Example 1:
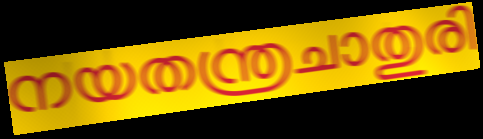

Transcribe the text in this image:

നയതന്ത്രചാതുരി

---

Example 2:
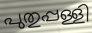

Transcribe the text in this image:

പുതുപ്പള്ളി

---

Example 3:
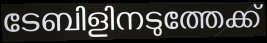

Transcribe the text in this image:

ടേബിളിനടുത്തേക്ക്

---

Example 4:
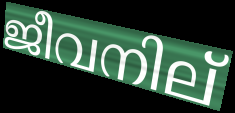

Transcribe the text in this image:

ജീവനില്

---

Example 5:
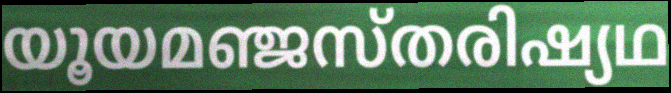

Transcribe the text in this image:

യൂയമഞ്ജസ്തരിഷ്യഥ